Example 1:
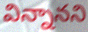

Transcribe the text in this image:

విన్నానని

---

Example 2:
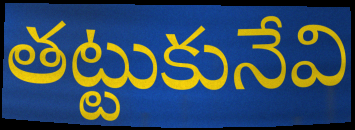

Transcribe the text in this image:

తట్టుకునేవి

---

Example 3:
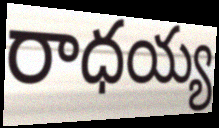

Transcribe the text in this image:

రాధయ్య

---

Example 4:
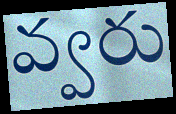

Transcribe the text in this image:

వ్వరు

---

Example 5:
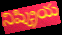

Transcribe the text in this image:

నిష్క్రియ